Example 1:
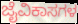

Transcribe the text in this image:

ಜೈವಿಕಾಸಗಳ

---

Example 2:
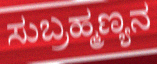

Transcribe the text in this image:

ಸುಬ್ರಹ್ಮಣ್ಯನ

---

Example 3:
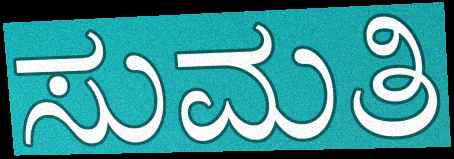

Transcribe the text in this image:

ಸುಮತಿ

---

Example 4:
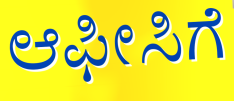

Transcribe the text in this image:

ಆಫೀಸಿಗೆ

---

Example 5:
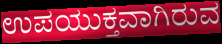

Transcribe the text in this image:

ಉಪಯುಕ್ತವಾಗಿರುವ